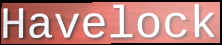
Havelock